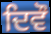
ਦਿਵੌ